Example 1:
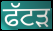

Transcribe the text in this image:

ਫੱਟੜ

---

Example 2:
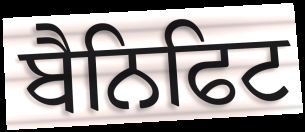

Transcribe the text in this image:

ਬੈਨਿਫਿਟ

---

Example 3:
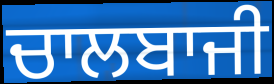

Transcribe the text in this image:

ਚਾਲਬਾਜੀ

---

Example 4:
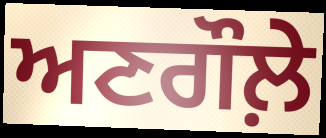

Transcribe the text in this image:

ਅਣਗੌਲ਼ੇ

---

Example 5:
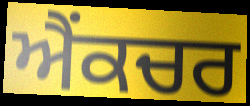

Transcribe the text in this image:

ਐਂਕਚਰ